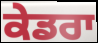
ਕੇਡਰਾ